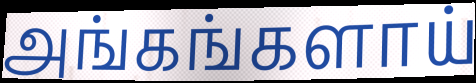
அங்கங்களாய்